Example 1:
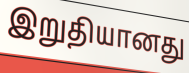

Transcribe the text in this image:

இறுதியானது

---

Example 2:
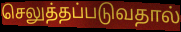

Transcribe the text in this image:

செலுத்தப்படுவதால்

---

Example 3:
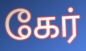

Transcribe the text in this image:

கேர்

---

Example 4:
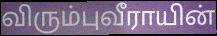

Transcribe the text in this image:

விரும்புவீராயின்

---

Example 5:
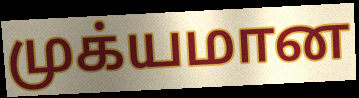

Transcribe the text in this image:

முக்யமான